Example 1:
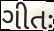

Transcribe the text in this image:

ગીતઃ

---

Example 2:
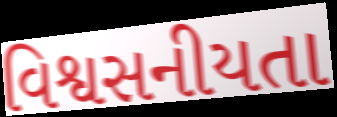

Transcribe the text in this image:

વિશ્વસનીયતા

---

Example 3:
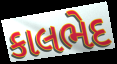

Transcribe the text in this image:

કાલભેદ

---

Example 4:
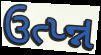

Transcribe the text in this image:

ઉત્પ્ન્ન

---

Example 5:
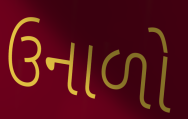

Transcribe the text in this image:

ઉનાળો